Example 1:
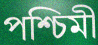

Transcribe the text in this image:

পশ্চিমী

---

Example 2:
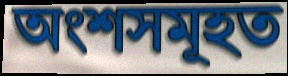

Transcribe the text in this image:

অংশসমূহত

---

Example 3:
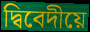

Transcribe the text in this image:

দ্বিবেদীয়ে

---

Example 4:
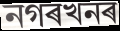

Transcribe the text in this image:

নগৰখনৰ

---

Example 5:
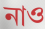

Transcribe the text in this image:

নাও